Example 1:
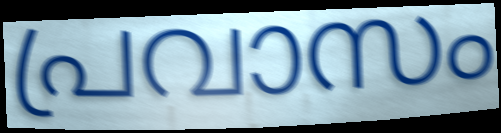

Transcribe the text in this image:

പ്രവാസം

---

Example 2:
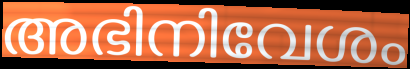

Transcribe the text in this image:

അഭിനിവേശം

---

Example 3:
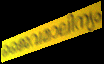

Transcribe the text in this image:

ജൈവമാലിന്യം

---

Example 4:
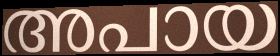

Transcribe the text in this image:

അപായ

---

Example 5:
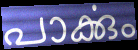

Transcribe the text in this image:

പാൎക്കും